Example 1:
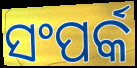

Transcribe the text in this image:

ସଂପର୍କ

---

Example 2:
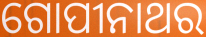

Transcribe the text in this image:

ଗୋପୀନାଥର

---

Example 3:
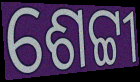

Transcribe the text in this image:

ଶେଟ୍ଟୀ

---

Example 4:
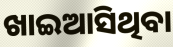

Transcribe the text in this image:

ଖାଇଆସିଥିବା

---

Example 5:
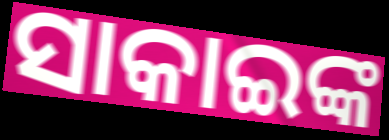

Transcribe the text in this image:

ସାକାଇଙ୍କ